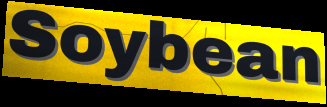
Soybean